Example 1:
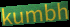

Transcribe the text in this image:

kumbh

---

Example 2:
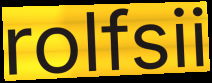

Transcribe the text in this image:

rolfsii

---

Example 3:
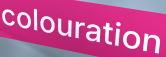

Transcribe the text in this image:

colouration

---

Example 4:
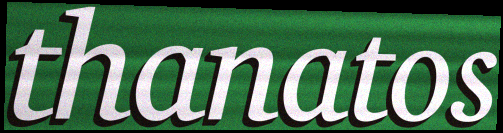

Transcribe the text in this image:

thanatos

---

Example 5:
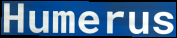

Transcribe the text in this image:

Humerus